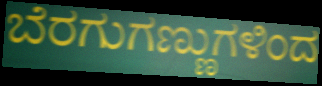
ಬೆರಗುಗಣ್ಣುಗಳಿಂದ